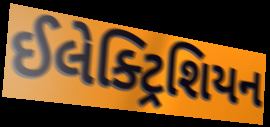
ઈલેક્ટ્રિશિયન